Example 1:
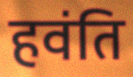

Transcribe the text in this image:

हवंति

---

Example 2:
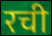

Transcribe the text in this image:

रची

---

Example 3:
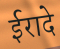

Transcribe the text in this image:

ईरादे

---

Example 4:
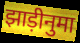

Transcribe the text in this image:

झाड़ीनुमा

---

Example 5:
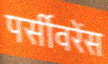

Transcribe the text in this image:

पर्सीवरेंस